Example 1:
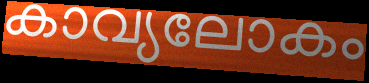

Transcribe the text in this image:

കാവ്യലോകം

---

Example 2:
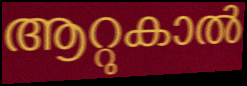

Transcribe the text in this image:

ആറ്റുകാൽ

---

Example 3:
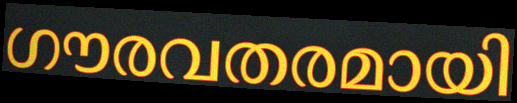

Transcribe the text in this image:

ഗൗരവതരമായി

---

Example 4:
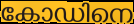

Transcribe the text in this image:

കോഡിനെ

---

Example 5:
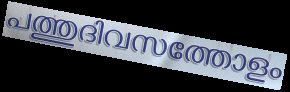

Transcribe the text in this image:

പത്തുദിവസത്തോളം